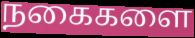
நகைகளை